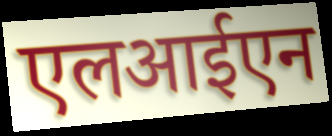
एलआईएन